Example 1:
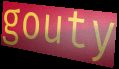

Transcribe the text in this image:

gouty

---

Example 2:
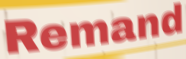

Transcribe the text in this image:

Remand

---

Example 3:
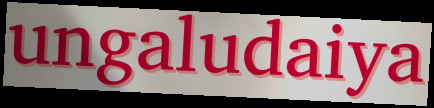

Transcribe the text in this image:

ungaludaiya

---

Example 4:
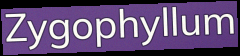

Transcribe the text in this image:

Zygophyllum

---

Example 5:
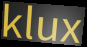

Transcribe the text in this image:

klux